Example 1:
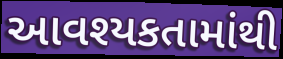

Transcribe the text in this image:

આવશ્યકતામાંથી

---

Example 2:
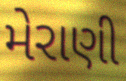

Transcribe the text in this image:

મેરાણી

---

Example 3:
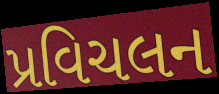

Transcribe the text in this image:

પ્રવિચલન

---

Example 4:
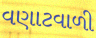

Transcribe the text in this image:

વણાટવાળી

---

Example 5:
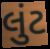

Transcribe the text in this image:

લુંટ